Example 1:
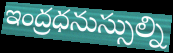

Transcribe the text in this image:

ఇంద్రధనుస్సుల్ని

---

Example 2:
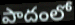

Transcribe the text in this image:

పాదంలో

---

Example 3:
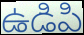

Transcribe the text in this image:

ఉడిపి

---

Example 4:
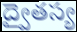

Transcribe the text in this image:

ద్వైతస్య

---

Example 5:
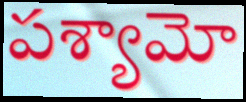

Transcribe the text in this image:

పశ్యామో